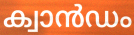
ക്വാൻഡം